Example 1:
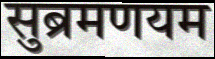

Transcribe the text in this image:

सुब्रमणयम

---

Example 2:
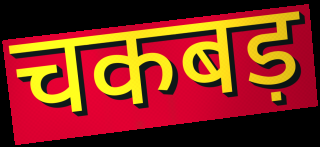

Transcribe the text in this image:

चकबड़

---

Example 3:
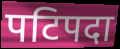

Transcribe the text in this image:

पटिपदा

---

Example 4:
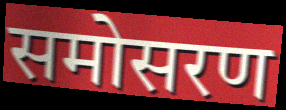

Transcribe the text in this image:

समोसरण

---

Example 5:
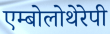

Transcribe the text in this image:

एम्बोलोथेरेपी